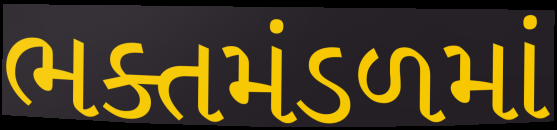
ભક્તમંડળમાં